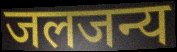
जलजन्य